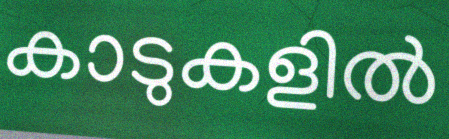
കാടുകളിൽ